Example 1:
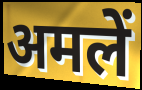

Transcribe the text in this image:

अमलें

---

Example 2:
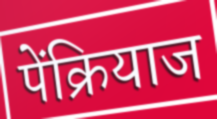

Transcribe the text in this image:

पेंक्रियाज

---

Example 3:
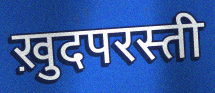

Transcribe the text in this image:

ख़ुदपरस्ती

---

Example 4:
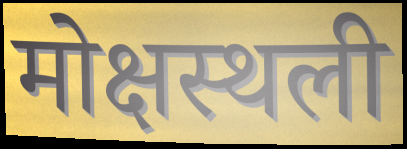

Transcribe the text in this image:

मोक्षस्थली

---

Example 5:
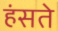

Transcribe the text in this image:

हंसते